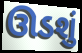
ઊડશું